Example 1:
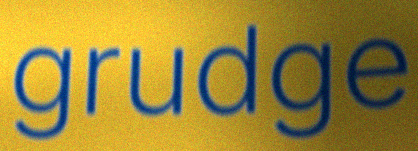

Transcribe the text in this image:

grudge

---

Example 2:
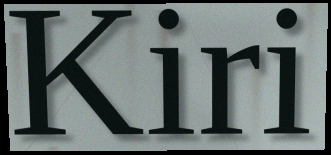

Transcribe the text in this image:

Kiri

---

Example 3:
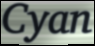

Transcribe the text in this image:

Cyan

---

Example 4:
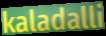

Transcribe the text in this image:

kaladalli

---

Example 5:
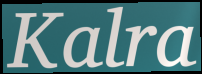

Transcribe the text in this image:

Kalra